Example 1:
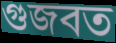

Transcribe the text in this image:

গুজবত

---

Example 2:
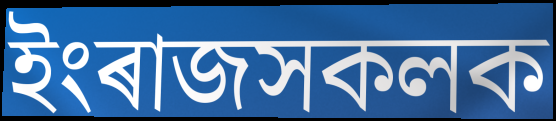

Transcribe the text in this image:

ইংৰাজসকলক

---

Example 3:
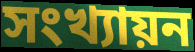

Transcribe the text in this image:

সংখ্যায়ন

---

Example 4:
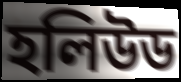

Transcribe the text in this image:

হলিউড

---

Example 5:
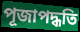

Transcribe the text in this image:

পূজাপদ্ধতি